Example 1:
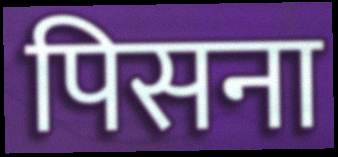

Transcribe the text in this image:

पिसना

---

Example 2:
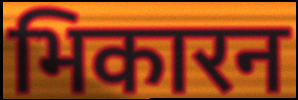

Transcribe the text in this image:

भिकारन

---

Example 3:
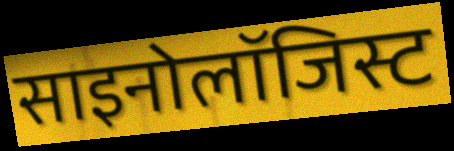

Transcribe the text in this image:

साइनोलॉजिस्ट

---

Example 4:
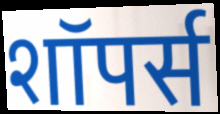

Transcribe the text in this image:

शॉपर्स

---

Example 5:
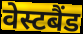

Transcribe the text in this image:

वेस्टबैंड